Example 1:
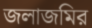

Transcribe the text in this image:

জলাজমির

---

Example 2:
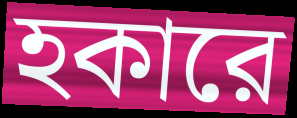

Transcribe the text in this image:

হকারে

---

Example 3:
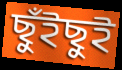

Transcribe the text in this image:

ছুঁইছুই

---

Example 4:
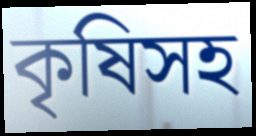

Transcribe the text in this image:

কৃষিসহ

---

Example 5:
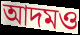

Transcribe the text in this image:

আদমও